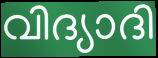
വിദ്യാദി